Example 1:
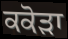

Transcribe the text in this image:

ਕਕੋੜਾ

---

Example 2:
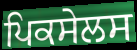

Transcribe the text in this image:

ਪਿਕਸੇਲਸ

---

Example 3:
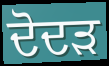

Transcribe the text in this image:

ਦੋਦੜ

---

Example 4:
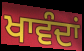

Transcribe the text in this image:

ਖਾਵੰਦਾਂ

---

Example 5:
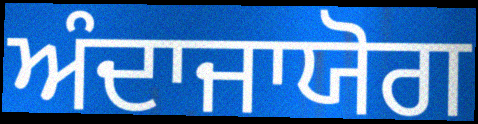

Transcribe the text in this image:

ਅੰਦਾਜਾਯੋਗ